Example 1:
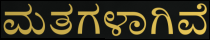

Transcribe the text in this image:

ಮತಗಳಾಗಿವೆ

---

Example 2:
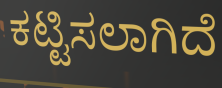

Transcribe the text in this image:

ಕಟ್ಟಿಸಲಾಗಿದೆ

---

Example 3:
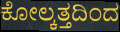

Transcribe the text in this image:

ಕೋಲ್ಕತ್ತದಿಂದ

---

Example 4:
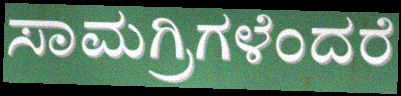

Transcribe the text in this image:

ಸಾಮಗ್ರಿಗಳೆಂದರೆ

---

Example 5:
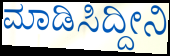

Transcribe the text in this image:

ಮಾಡಿಸಿದ್ದೀನಿ